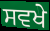
ਸਵਖੇ